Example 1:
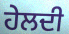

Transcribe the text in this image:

ਹੇਲਦੀ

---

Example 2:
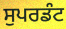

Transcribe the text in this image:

ਸੁਪਰਡੰਟ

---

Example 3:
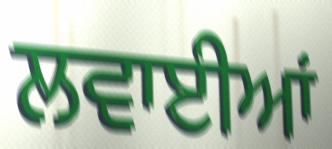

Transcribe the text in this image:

ਲਵਾਈਆਂ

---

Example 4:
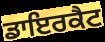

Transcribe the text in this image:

ਡਾਇਰਕੈਟ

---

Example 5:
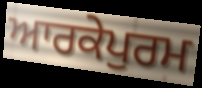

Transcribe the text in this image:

ਆਰਕੇਪੁਰਮ